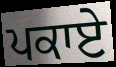
ਪਕਾਏ